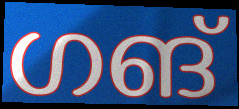
ഗങ്